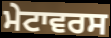
ਮੇਟਾਵਰਸ